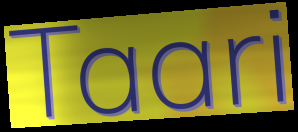
Taari